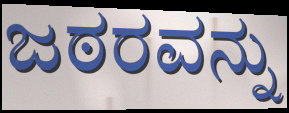
ಜಠರವನ್ನು